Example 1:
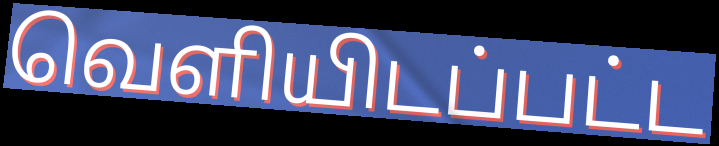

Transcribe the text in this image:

வெளியிடப்பட்ட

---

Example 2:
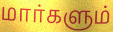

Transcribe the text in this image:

மார்களும்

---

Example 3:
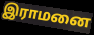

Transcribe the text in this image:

இராமனை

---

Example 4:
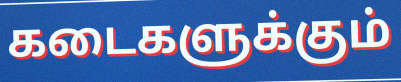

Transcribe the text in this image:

கடைகளுக்கும்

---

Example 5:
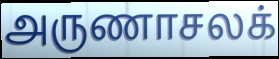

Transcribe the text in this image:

அருணாசலக்